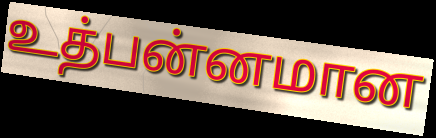
உத்பன்னமான